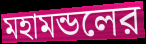
মহামন্ডলের